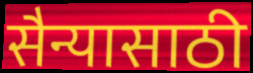
सैन्यासाठी